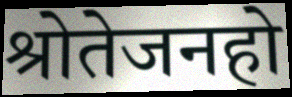
श्रोतेजनहो